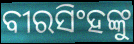
ବୀରସିଂହଙ୍କୁ